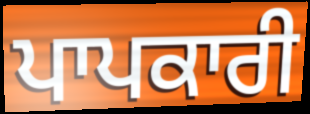
ਪਾਪਕਾਰੀ